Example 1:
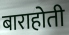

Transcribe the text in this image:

बाराहोती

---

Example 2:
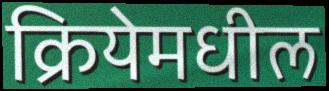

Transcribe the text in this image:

क्रियेमधील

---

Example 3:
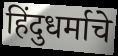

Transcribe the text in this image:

हिंदुधर्माचे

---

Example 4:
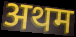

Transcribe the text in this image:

अथम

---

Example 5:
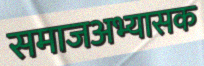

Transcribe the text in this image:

समाजअभ्यासक